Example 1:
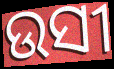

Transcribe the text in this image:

ଉସୀ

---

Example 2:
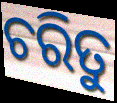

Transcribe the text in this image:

ଚରିତୁ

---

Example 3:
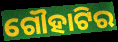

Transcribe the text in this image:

ଗୌହାଟିର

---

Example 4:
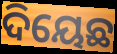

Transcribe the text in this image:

ଦିୟେଛ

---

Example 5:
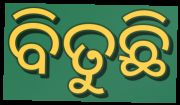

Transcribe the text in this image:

ବିତୁଛି